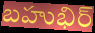
బహుభిర్